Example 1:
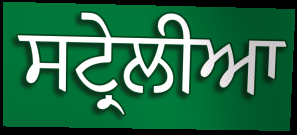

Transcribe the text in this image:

ਸਟ੍ਰੇਲੀਆ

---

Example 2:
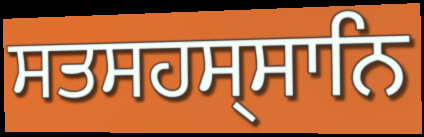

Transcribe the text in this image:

ਸਤਸਹਸ੍ਸਾਨਿ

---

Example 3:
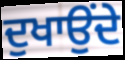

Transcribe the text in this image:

ਦੁਖਾਉਂਦੇ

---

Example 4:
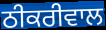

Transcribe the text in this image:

ਠੀਕਰੀਵਾਲ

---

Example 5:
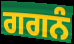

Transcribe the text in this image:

ਗਗਨੰ